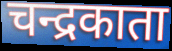
चन्द्रकाता